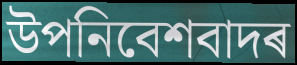
উপনিবেশবাদৰ